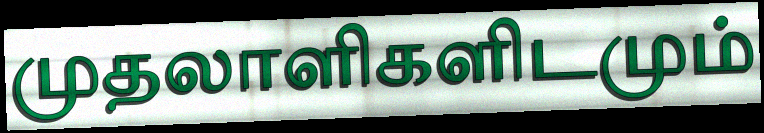
முதலாளிகளிடமும்